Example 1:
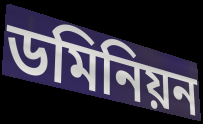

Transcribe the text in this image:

ডমিনিয়ন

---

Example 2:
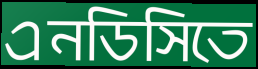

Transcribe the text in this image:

এনডিসিতে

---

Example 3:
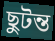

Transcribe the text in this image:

ছুটন্ত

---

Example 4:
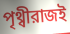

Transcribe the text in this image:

পৃথ্বীরাজই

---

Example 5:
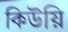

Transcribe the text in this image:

কিউয়ি